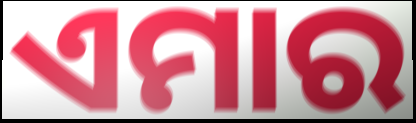
ଏମାର